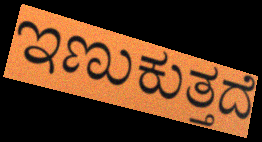
ಇಣುಕುತ್ತದೆ